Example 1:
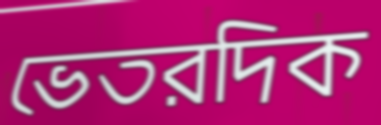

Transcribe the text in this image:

ভেতরদিক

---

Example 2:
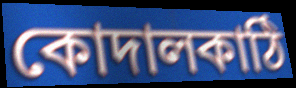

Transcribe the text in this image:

কোদালকাঠি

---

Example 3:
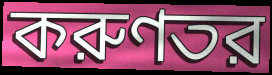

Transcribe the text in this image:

করুণতর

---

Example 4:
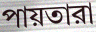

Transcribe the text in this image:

পায়তারা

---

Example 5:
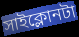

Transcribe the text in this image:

সাইক্লোনটা